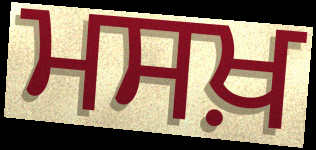
ਮਸਖ਼